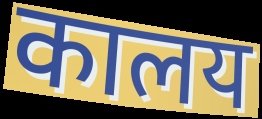
कालय